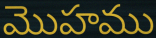
మొహము